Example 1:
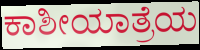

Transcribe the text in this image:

ಕಾಶೀಯಾತ್ರೆಯ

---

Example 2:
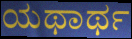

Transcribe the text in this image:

ಯಥಾರ್ಥ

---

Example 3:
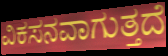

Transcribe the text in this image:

ವಿಕಸನವಾಗುತ್ತದೆ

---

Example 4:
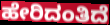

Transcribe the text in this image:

ಹೇರಿದಂತಿದೆ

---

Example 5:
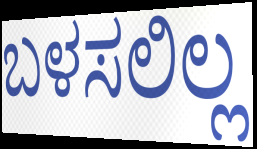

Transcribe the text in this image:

ಬಳಸಲಿಲ್ಲ